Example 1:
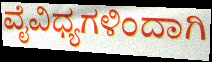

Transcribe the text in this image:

ವೈವಿಧ್ಯಗಳಿಂದಾಗಿ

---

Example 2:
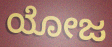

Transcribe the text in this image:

ಯೋಜ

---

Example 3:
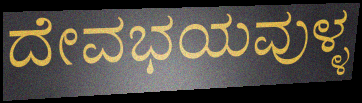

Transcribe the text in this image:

ದೇವಭಯವುಳ್ಳ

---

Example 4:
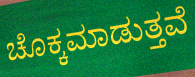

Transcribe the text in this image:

ಚೊಕ್ಕಮಾಡುತ್ತವೆ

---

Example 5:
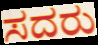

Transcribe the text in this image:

ಸದರು